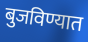
बुजविण्यात